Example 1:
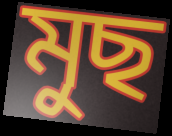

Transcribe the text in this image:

মুছ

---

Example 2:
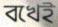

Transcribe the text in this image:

বখেই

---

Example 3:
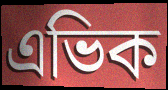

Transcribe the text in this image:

এভিক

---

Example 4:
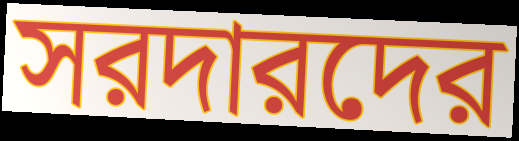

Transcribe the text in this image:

সরদারদের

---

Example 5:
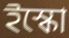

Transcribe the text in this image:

ইস্কো